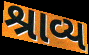
શ્રાવ્ય